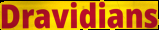
Dravidians